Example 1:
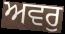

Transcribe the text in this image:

ਅਵਰੁ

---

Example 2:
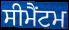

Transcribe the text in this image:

ਸੀਮੈਂਟਮ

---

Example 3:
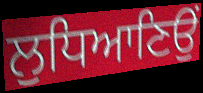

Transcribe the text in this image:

ਲੁਧਿਆਣਿਉਂ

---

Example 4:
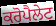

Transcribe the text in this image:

ਕਰੋਪੈਲੇਟ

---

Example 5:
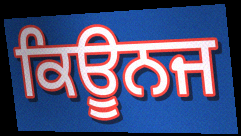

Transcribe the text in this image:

ਕਿਊਨਜ